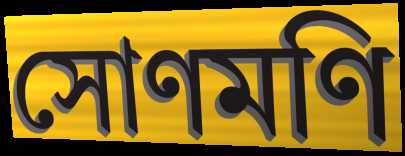
সোণমণি